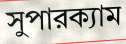
সুপারক্যাম